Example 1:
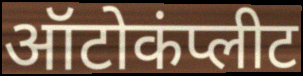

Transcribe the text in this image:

ऑटोकंप्लीट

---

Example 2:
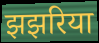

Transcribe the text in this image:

झझरिया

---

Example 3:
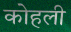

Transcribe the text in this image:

कोहली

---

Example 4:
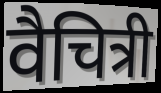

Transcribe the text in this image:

वैचित्री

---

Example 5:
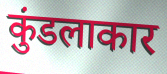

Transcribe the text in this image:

कुंडलाकार